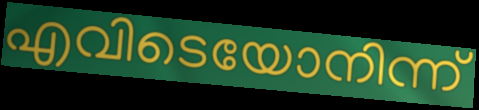
എവിടെയോനിന്ന്